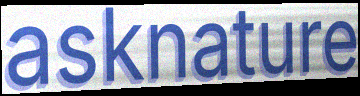
asknature